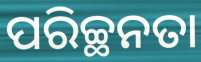
ପରିଚ୍ଛନତା